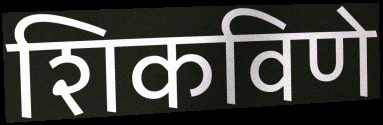
शिकविणे